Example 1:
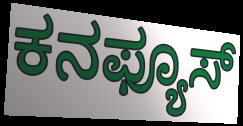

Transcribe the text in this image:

ಕನಫ್ಯೂಸ್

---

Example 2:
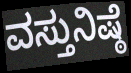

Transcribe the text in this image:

ವಸ್ತುನಿಷ್ಠೆ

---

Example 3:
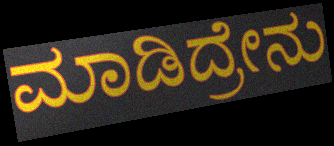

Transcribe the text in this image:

ಮಾಡಿದ್ರೇನು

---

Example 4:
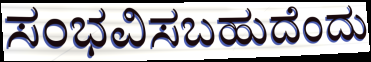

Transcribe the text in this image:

ಸಂಭವಿಸಬಹುದೆಂದು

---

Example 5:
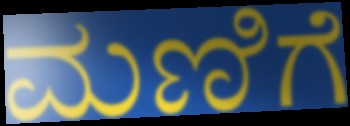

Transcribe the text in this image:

ಮಣಿಗೆ